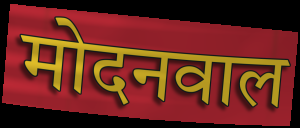
मोदनवाल